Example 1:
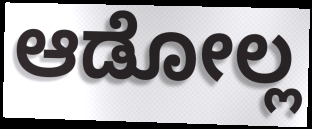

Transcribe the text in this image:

ಆಡೋಲ್ಲ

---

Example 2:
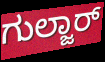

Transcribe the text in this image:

ಗುಲ್ಜಾರ್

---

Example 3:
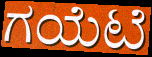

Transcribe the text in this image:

ಗಯೆಟೆ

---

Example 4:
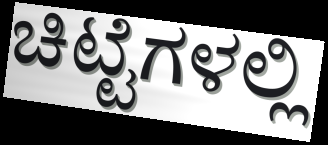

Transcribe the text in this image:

ಚಿಟ್ಟೆಗಳಲ್ಲಿ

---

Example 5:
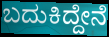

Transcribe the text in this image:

ಬದುಕಿದ್ದೇನೆ